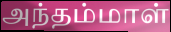
அந்தம்மாள்